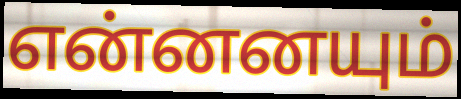
என்னனயும்